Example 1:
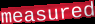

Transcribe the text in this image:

measured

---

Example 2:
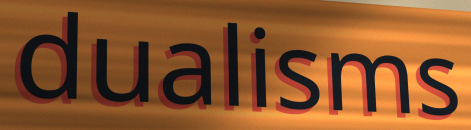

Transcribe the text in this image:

dualisms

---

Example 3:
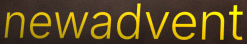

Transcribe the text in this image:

newadvent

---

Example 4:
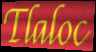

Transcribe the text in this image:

Tlaloc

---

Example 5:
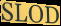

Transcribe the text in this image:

SLOD